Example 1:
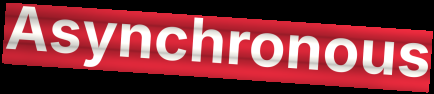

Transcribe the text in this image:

Asynchronous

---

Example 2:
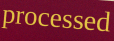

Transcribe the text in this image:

processed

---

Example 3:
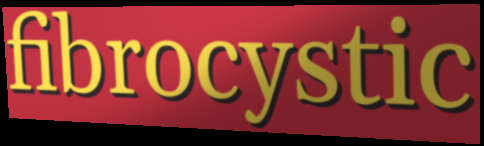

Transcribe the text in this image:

fibrocystic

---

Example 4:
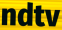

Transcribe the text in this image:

ndtv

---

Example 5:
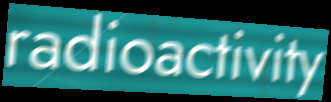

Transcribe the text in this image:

radioactivity